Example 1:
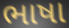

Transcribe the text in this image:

ભાષા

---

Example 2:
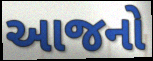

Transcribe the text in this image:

આજનો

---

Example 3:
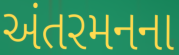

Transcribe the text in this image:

અંતરમનના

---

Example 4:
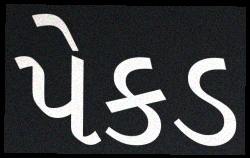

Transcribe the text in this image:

પેકડ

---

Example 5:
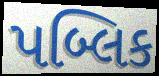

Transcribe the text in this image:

પબ્લિક